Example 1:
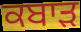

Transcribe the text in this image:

ਕਬਾਡ਼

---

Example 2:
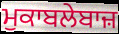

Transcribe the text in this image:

ਮੁਕਾਬਲੇਬਾਜ਼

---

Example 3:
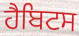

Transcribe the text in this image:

ਹੈਬਿਟਸ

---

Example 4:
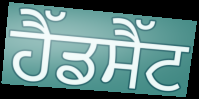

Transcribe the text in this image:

ਹੈੱਡਸੈੱਟ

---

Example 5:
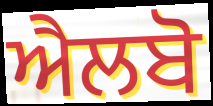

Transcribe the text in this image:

ਐਲਬੋ